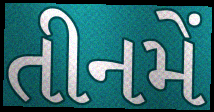
તીનમેં